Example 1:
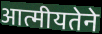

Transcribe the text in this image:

आत्मीयतेने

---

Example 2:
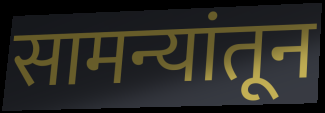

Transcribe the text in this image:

सामन्यांतून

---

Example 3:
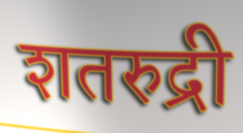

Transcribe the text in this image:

शतरुद्री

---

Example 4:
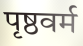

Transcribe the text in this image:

पृष्ठवर्म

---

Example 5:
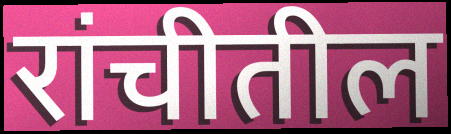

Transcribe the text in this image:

रांचीतील